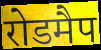
रोडमैप